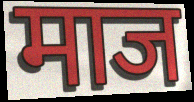
माज